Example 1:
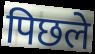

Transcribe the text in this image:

पिछले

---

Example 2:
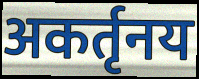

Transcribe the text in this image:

अकर्तृनय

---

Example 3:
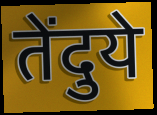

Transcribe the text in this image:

तेंदुये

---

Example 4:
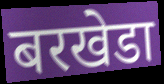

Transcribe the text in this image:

बरखेडा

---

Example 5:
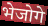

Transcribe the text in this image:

भेजोगे